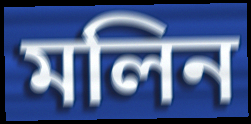
মলিন